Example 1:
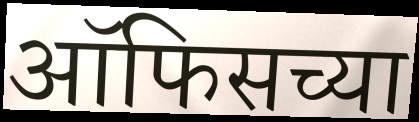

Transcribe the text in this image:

ऑफिसच्या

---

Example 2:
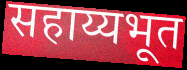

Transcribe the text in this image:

सहाय्यभूत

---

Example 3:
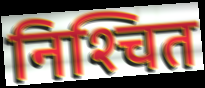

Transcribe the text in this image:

निश्चित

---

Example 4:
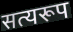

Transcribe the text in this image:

सत्यरूप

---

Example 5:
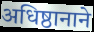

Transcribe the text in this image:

अधिष्ठानाने